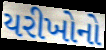
યરીખોનો